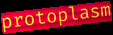
protoplasm